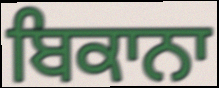
ਬਿਕਾਨਾ